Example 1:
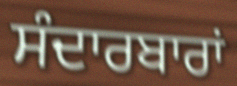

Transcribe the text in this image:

ਸੰਦਾਰਬਾਰਾਂ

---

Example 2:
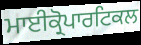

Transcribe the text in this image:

ਮਾਈਕ੍ਰੋਪਾਰਟਿਕਲ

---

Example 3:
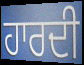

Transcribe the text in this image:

ਹਾਰਦੀ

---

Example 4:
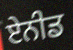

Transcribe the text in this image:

ਏਨੀਡ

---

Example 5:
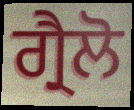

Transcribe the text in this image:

ਗ੍ਰੈਲੋ